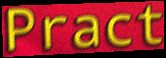
Pract